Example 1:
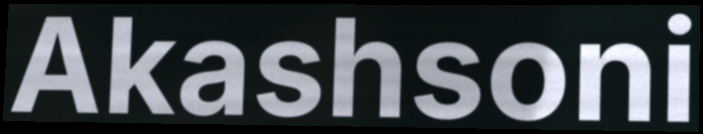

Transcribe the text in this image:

Akashsoni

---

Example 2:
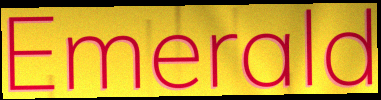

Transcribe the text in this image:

Emerald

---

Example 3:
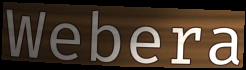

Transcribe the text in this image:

Webera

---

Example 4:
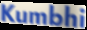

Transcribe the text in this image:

Kumbhi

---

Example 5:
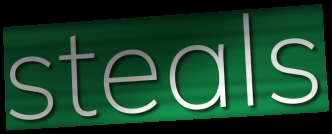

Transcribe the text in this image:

steals